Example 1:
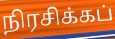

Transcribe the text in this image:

நிரசிக்கப்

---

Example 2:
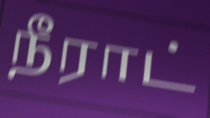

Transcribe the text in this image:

நீராட்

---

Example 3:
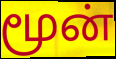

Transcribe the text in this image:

மூன்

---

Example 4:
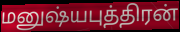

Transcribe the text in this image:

மனுஷ்யபுத்திரன்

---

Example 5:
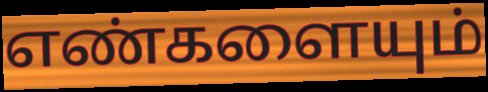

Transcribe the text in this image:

எண்களையும்